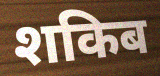
शकिब